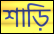
শাড়ি